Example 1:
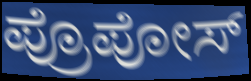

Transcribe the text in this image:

ಪ್ರೊಪೋಸ್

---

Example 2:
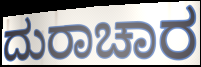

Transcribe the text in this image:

ದುರಾಚಾರ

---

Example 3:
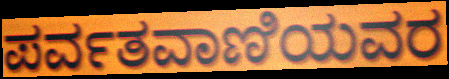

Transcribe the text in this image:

ಪರ್ವತವಾಣಿಯವರ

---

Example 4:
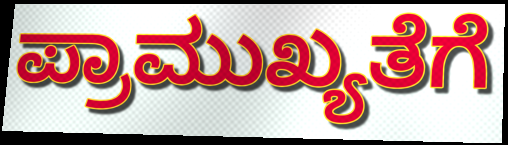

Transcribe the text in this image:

ಪ್ರಾಮುಖ್ಯತೆಗೆ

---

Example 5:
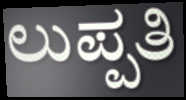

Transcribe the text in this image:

ಲುಪ್ಪತಿ